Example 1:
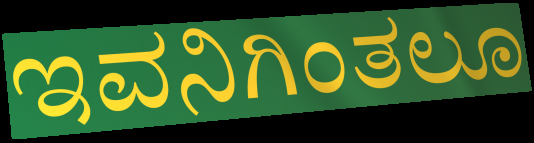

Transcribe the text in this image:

ಇವನಿಗಿಂತಲೂ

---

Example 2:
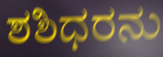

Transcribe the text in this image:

ಶಶಿಧರನು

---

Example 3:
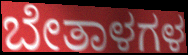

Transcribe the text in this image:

ಬೇತಾಳಗಳ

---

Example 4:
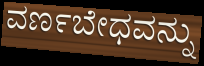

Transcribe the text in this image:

ವರ್ಣಬೇಧವನ್ನು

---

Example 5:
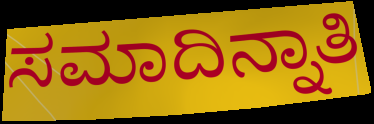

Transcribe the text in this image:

ಸಮಾದಿನ್ನಾತಿ